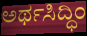
ಅರ್ಥಸಿದ್ಧಿಂ